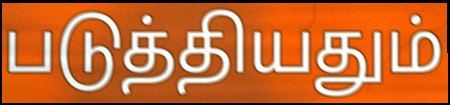
படுத்தியதும்